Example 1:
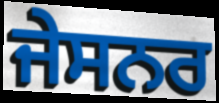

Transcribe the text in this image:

ਜੇਸਨਰ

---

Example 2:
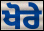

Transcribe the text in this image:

ਖੋਰੇ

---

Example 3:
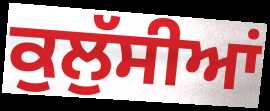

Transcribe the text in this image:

ਕੁਲੁੱਸੀਆਂ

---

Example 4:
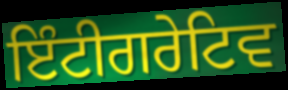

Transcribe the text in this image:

ਇੰਟੀਗਰੇਟਿਵ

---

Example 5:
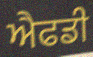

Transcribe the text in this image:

ਐਫਡੀ